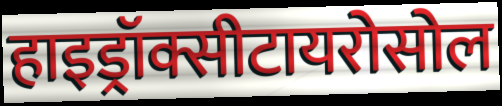
हाइड्रॉक्सीटायरोसोल